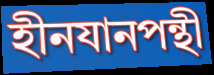
হীনযানপন্থী